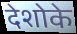
देशोके